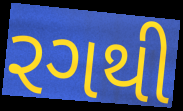
રગથી